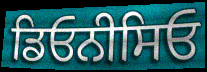
ਡਿਓਨੀਸਿਓ